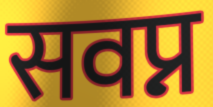
सवप्न